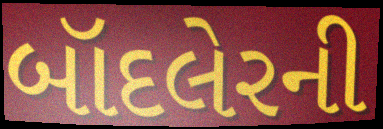
બૉદલેરની